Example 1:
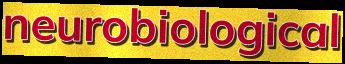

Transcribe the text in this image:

neurobiological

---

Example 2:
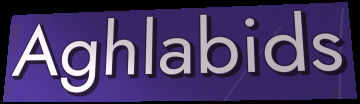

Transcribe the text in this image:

Aghlabids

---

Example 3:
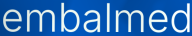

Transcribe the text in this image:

embalmed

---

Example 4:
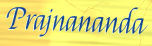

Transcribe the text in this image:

Prajnananda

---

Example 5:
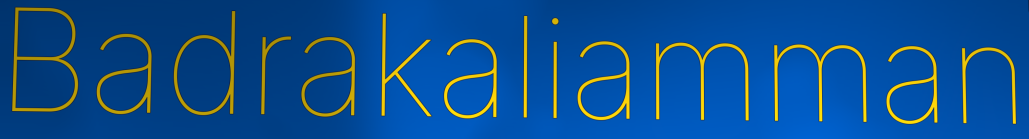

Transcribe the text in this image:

Badrakaliamman